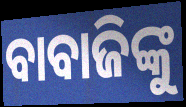
ବାବାଜିଙ୍କୁ